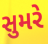
સુમરે